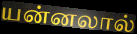
யன்னலால்